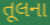
તૂલના